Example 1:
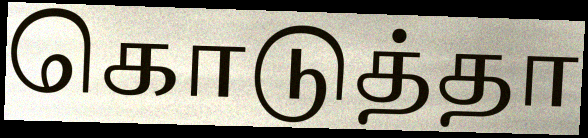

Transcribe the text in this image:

கொடுத்தா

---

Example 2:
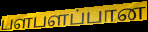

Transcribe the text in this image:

பளபளப்பான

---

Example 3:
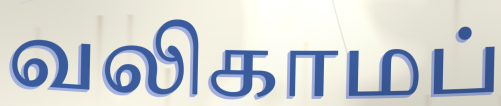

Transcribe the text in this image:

வலிகாமப்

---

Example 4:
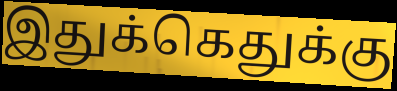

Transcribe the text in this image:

இதுக்கெதுக்கு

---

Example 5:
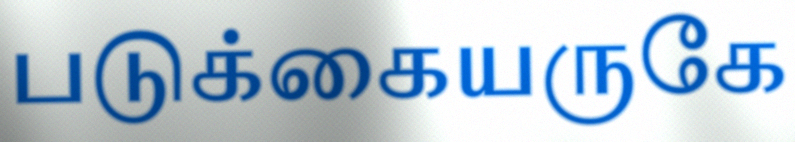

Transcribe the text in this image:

படுக்கையருகே